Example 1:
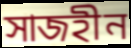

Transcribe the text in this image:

সাজহীন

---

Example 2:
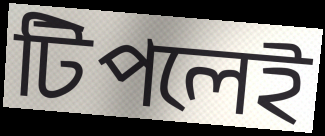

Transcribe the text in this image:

টিপলেই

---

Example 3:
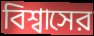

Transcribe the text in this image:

বিশ্বাসের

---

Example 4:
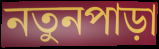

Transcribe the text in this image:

নতুনপাড়া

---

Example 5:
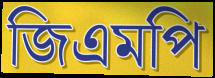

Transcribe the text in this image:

জিএমপি